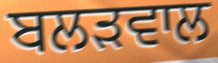
ਬਲੜਵਾਲ